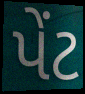
પેંટ